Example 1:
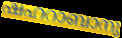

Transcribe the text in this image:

ഷഹറാബാനു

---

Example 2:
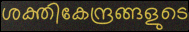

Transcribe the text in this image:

ശക്തികേന്ദ്രങ്ങളുടെ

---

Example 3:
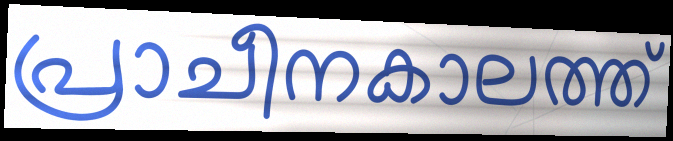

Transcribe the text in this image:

പ്രാചീനകാലത്ത്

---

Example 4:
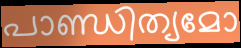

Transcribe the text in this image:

പാണ്ഡിത്യമോ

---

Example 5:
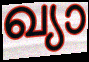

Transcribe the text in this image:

ഖ്യാ